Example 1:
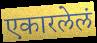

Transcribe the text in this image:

एकारलेलं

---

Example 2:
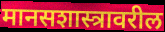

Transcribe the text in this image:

मानसशास्त्रावरील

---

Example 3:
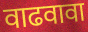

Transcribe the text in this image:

वाढवावा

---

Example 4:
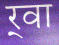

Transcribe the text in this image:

र्वा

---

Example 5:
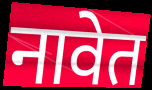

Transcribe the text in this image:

नावेत